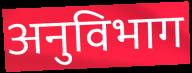
अनुविभाग